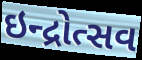
ઇન્દ્રોત્સવ